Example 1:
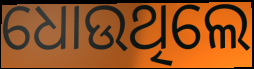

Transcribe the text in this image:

ଧୋଉଥିଲେ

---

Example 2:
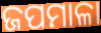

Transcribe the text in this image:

ଜପମାଳା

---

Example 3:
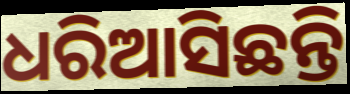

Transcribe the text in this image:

ଧରିଆସିଛନ୍ତି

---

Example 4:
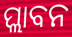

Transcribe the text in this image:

ପ୍ଲାବନ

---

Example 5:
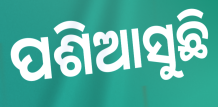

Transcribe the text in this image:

ପଶିଆସୁଛି